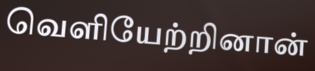
வெளியேற்றினான்